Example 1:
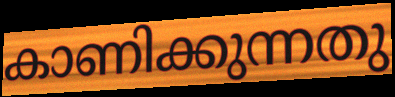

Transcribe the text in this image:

കാണിക്കുന്നതു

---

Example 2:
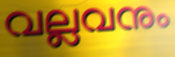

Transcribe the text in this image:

വല്ലവനും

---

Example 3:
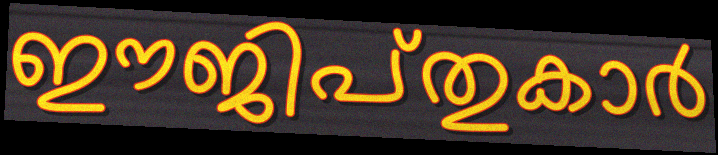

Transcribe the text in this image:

ഈജിപ്‌തുകാർ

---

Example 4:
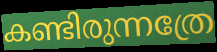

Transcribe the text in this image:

കണ്ടിരുന്നത്രേ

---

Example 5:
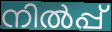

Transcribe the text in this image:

നിൽപ്പ്